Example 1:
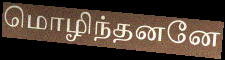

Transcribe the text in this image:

மொழிந்தனனே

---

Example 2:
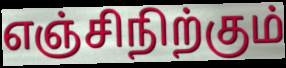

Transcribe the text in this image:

எஞ்சிநிற்கும்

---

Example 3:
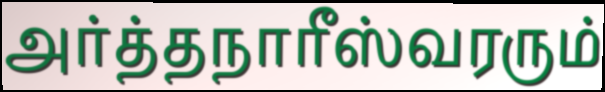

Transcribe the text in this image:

அர்த்தநாரீஸ்வரரும்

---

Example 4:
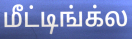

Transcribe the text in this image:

மீட்டிங்க்ல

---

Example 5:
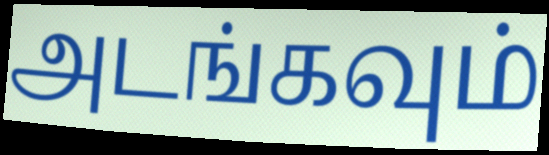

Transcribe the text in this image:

அடங்கவும்